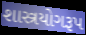
શાસ્ત્રયોગરૂપ